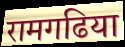
रामगढिया